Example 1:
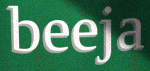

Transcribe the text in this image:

beeja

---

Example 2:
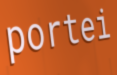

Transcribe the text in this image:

portei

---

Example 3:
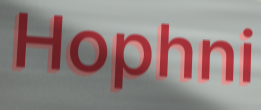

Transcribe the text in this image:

Hophni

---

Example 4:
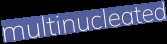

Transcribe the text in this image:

multinucleated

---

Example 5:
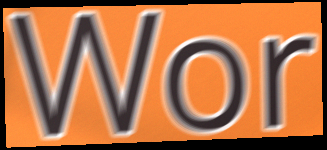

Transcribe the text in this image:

Wor